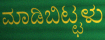
ಮಾಡಿಬಿಟ್ಟಳು